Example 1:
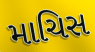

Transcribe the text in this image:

માચિસ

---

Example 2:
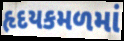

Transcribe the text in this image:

હૃદયકમળમાં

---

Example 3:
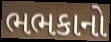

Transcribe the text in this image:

ભભકાનો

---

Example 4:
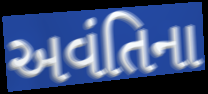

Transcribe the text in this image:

અવંતિના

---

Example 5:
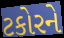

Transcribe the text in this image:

ટકોરને